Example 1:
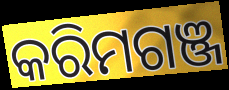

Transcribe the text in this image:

କରିମଗଞ୍ଜ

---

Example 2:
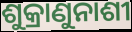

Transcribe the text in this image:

ଶୁକ୍ରାଣୁନାଶୀ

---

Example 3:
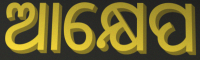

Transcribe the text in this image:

ଆକ୍ଷେପ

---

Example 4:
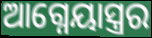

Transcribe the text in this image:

ଆଗ୍ନେୟାସ୍ତ୍ରର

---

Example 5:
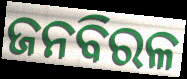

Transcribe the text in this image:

ଜନବିରଳ